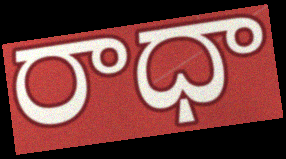
రాధా